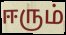
ஈரும்